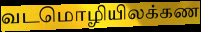
வடமொழியிலக்கண